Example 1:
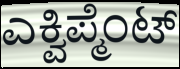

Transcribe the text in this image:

ಎಕ್ವಿಪ್ಮೆಂಟ್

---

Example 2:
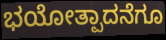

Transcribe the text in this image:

ಭಯೋತ್ಪಾದನೆಗೂ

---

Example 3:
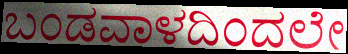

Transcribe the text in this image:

ಬಂಡವಾಳದಿಂದಲೇ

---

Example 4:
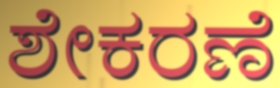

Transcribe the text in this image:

ಶೇಕರಣೆ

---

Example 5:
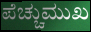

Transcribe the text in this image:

ಪೆಚ್ಚುಮುಖ